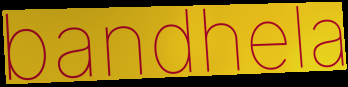
bandhela